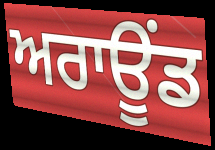
ਅਰਾਊਂਡ